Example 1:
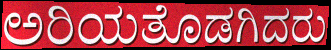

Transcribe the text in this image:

ಅರಿಯತೊಡಗಿದರು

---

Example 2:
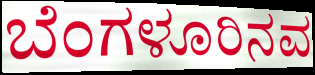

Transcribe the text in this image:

ಬೆಂಗಳೂರಿನವ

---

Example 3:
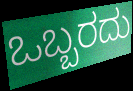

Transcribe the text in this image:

ಒಬ್ಬರದು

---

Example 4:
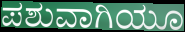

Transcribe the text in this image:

ಪಶುವಾಗಿಯೂ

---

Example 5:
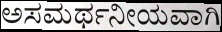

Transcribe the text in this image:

ಅಸಮರ್ಥನೀಯವಾಗಿ